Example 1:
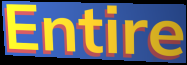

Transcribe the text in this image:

Entire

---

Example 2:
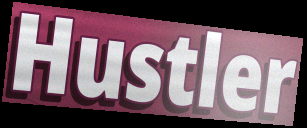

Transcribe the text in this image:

Hustler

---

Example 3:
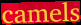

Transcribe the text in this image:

camels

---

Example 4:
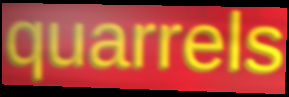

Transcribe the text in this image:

quarrels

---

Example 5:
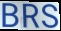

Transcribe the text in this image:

BRS